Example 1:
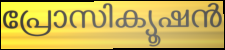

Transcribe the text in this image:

പ്രോസിക്യൂഷൻ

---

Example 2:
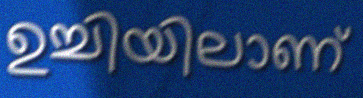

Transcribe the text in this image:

ഉച്ചിയിലാണ്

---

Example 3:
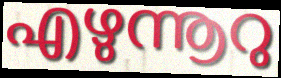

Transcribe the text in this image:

എഴുന്നൂറു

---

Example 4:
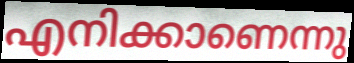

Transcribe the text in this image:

എനിക്കാണെന്നു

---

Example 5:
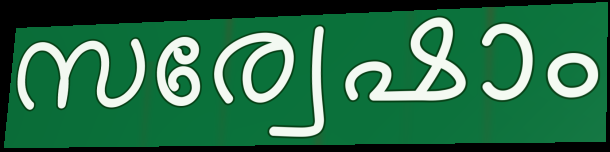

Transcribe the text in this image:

സര്വേഷാം